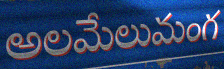
అలమేలుమంగ